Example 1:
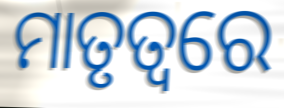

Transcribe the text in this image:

ମାତୃତ୍ୱରେ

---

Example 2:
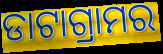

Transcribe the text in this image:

ଡାଟାଗ୍ରାମର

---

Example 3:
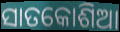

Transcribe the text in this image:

ସାତକୋଶିଆ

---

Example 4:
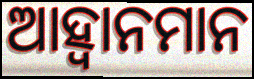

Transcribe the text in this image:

ଆହ୍ୱାନମାନ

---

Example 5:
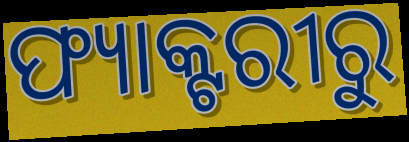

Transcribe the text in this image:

ଫ୍ୟାକ୍ଟରୀରୁ